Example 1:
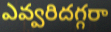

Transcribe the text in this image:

ఎవ్వరిదగ్గరా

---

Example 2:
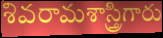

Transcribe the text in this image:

శివరామశాస్త్రిగారు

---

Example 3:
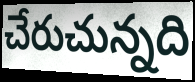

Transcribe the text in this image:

చేరుచున్నది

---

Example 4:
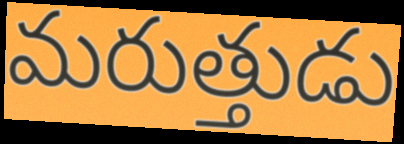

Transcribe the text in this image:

మరుత్తుడు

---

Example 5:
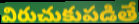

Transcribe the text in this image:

విరుచుకుపడితే